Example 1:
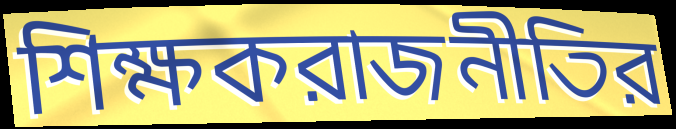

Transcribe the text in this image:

শিক্ষকরাজনীতির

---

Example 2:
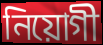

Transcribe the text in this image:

নিয়োগী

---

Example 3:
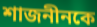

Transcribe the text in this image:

শাজনীনকে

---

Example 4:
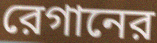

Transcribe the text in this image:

রেগানের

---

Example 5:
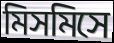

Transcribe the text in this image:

মিসমিসে